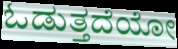
ಓಡುತ್ತದೆಯೋ